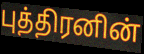
புத்திரனின்